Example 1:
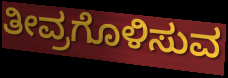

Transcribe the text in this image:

ತೀವ್ರಗೊಳಿಸುವ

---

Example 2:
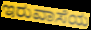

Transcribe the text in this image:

ಇರುವಾಸೆಯ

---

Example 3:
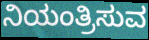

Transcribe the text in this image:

ನಿಯಂತ್ರಿಸುವ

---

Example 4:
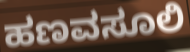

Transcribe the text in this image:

ಹಣವಸೂಲಿ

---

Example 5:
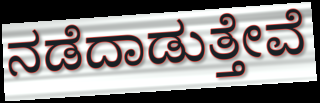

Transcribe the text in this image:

ನಡೆದಾಡುತ್ತೇವೆ